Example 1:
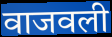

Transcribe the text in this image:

वाजवली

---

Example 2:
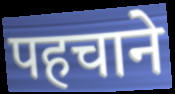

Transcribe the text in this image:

पहचाने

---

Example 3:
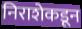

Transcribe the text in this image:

निराशेकडून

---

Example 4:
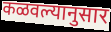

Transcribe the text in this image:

कळवल्यानुसार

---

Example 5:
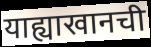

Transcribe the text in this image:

याह्याखानची